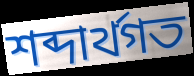
শব্দার্থগত